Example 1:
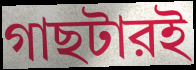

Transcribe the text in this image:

গাছটারই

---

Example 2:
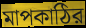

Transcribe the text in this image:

মাপকাঠির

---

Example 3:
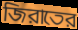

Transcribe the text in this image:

জিরাতের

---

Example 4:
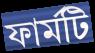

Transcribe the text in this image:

ফার্মটি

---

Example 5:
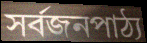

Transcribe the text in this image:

সর্বজনপাঠ্য